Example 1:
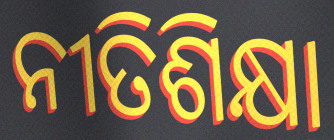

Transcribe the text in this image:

ନୀତିଶିକ୍ଷା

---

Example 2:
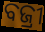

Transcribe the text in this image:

ବଜ୍ରୀ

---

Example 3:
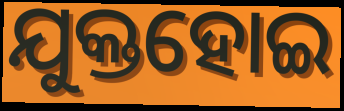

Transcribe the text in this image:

ଯୁକ୍ତହୋଇ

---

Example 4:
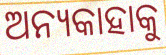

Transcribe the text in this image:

ଅନ୍ୟକାହାକୁ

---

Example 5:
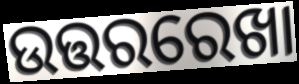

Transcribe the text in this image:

ଉତ୍ତରରେଖା